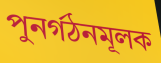
পুনর্গঠনমূলক